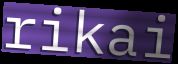
rikai